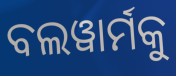
ବଲୱାର୍ମକୁ